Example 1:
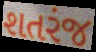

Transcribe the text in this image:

શતરંજ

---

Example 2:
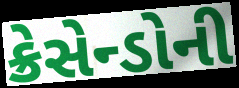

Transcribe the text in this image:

ક્રેસેન્ડોની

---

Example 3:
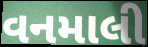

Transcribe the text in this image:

વનમાલી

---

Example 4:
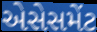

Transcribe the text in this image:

એસેસમેંટ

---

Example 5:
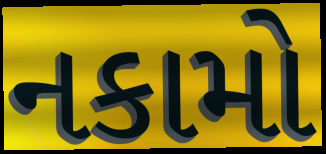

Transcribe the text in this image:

નકામો